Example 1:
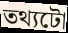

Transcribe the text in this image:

তথ্যটো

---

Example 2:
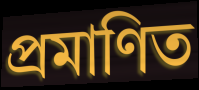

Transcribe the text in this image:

প্ৰমাণিত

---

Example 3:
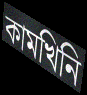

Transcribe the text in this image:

কামখিনি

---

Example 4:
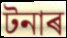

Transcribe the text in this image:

টনাৰ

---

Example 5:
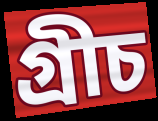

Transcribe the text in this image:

গ্ৰীচ